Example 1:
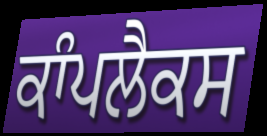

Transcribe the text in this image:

ਕਾੰਪਲੈਕਸ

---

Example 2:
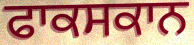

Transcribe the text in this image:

ਫਾਕਸਕਾਨ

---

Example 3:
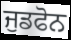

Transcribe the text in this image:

ਜੁਡਫੋਨ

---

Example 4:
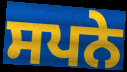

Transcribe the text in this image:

ਸਪਨੇ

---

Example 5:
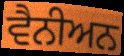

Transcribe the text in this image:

ਵੈਨੀਅਨ